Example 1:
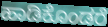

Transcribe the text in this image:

ಹಾಡಿಕೊಂಡರೆ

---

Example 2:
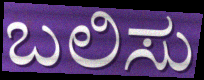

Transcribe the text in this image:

ಬಲಿಸು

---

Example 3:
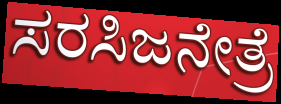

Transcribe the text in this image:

ಸರಸಿಜನೇತ್ರೆ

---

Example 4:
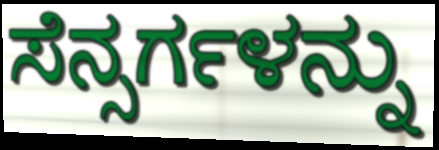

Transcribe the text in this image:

ಸೆನ್ಸರ್ಗಳನ್ನು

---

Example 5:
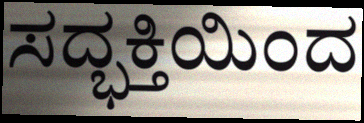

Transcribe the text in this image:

ಸದ್ಭಕ್ತಿಯಿಂದ